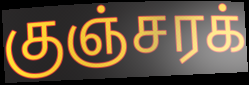
குஞ்சரக்